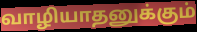
வாழியாதனுக்கும்